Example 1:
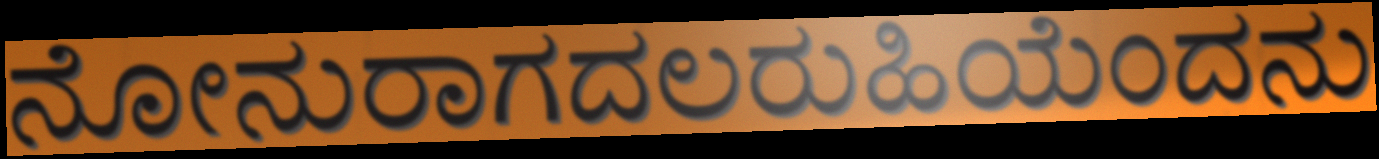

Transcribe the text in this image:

ನೋನುರಾಗದಲರುಹಿಯೆಂದನು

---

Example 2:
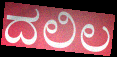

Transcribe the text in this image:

ದಲಿಲ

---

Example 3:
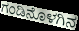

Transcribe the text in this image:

ಗಂಡಿನೊಳಗಿನ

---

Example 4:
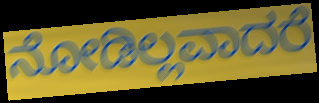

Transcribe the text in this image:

ನೋಡಿಲ್ಲವಾದರೆ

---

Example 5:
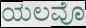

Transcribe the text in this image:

ಯಲವೊ